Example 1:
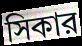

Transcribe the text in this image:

সিকার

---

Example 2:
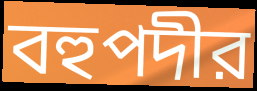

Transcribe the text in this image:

বহুপদীর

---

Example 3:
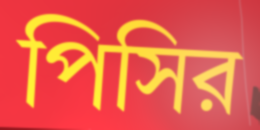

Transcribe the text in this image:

পিসির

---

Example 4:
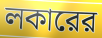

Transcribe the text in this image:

লকারের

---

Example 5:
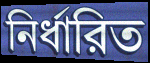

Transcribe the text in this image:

নির্ধারিত